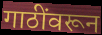
गाठींवरून